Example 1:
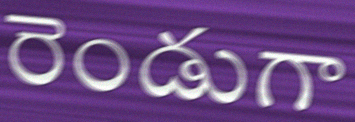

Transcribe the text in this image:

రెండుగా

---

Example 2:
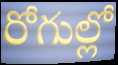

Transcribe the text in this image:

రోగుల్లో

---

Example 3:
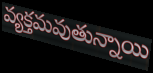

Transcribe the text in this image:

వ్యక్తమవుతున్నాయి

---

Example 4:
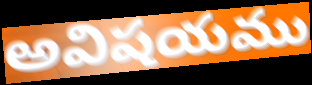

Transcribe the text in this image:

అవిషయము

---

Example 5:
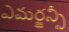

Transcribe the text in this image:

ఎమర్జన్సీ